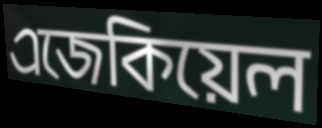
এজেকিয়েল